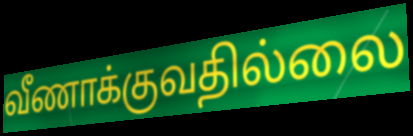
வீணாக்குவதில்லை